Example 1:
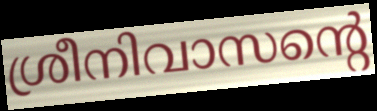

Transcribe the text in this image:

ശ്രീനിവാസന്റെ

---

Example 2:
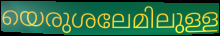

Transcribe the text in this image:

യെരുശലേമിലുള്ള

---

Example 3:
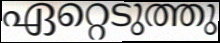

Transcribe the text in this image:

ഏറ്റെടുത്തു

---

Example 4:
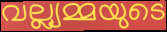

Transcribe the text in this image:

വല്ല്യമ്മയുടെ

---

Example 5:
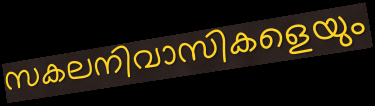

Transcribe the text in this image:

സകലനിവാസികളെയും